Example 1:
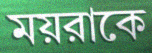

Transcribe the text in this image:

ময়রাকে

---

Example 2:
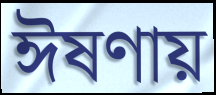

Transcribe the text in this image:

ঈষণায়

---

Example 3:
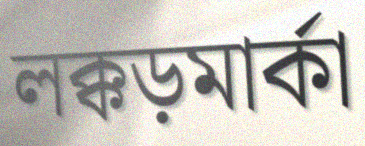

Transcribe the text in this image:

লক্কড়মার্কা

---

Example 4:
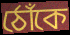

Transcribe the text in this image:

ঠোঁকে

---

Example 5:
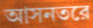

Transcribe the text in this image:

আসনতরে